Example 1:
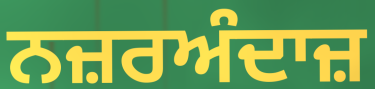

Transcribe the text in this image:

ਨਜ਼ਰਅੰਦਾਜ਼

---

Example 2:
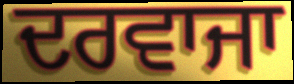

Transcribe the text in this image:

ਦਰਵਾਜਾ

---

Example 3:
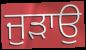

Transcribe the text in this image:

ਜੁੜਾਉ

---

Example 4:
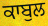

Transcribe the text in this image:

ਕਾਬੁਲ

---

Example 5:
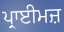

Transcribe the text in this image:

ਪ੍ਰਾਈਮਜ਼